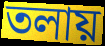
তলায়